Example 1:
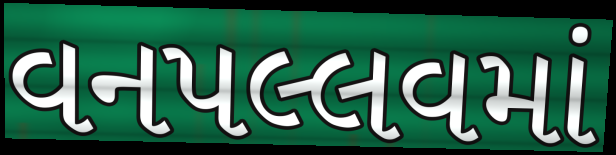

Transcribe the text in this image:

વનપલ્લવમાં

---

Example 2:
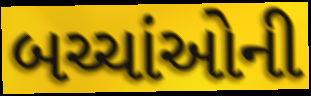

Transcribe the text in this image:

બચ્ચાંઓની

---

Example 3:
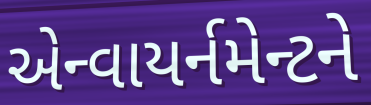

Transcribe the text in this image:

એન્વાયર્નમેન્ટને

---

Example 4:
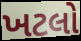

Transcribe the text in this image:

ખટલો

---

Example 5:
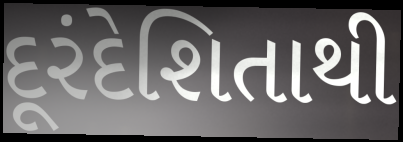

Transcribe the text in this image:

દૂરંદેશિતાથી